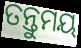
ତନ୍ତୁମୟ